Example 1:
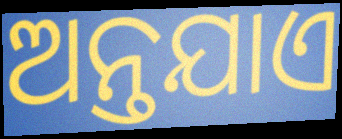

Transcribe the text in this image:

ଅନ୍ତଯାଏ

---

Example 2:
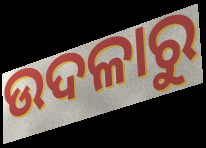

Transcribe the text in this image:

ଉଦଳାରୁ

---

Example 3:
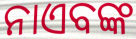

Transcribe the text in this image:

ନାଏବଙ୍କ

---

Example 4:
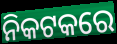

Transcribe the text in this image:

ନିକଟକରେ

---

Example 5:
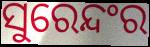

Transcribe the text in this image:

ସୁରେନ୍ଦଂର